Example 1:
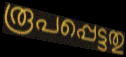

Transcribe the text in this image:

രൂപപ്പെട്ടതു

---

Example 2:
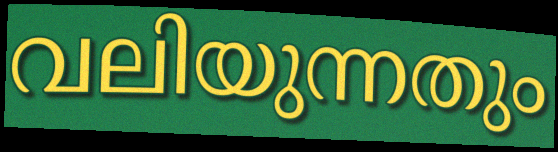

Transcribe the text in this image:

വലിയുന്നതും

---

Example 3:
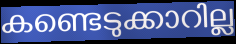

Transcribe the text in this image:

കണ്ടെടുക്കാറില്ല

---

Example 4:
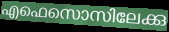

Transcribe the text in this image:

എഫെസൊസിലേക്കു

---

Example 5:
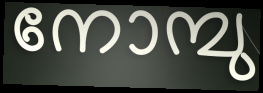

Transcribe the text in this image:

നോമ്പു